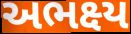
અભક્ષ્ય